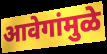
आवेगांमुळे